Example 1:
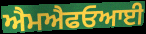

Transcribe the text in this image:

ਐਮਐਫਓਆਈ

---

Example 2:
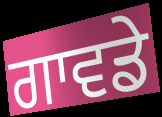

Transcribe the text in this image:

ਗਾਵਡੇ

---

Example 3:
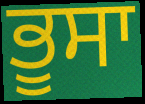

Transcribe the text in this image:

ਭੂਸਾ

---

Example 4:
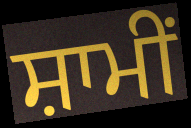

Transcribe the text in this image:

ਸ਼ਾਮੀਂ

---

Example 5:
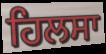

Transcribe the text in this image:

ਹਿਲਸਾ